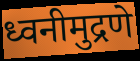
ध्वनीमुद्रणे